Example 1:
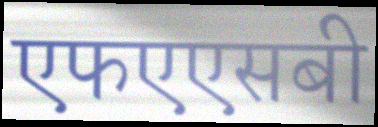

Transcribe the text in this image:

एफएएसबी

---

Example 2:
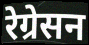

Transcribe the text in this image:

रेग्रेसन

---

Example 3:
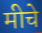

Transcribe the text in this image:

मीचे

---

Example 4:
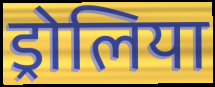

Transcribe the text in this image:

ड्रोलिया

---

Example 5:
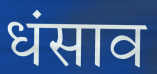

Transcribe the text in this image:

धंसाव